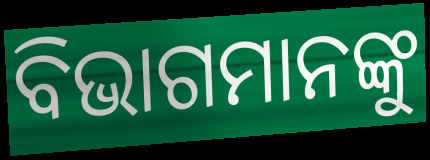
ବିଭାଗମାନଙ୍କୁ